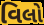
વિલો